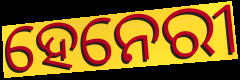
ହେନେରୀ